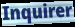
Inquirer